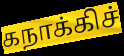
கநாக்கிச்